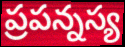
ప్రపన్నస్య